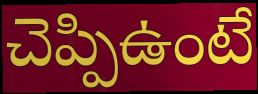
చెప్పిఉంటే